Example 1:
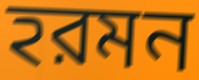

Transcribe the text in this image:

হরমন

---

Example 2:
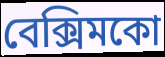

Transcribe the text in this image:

বেক্সিমকো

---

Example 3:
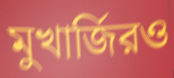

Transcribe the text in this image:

মুখার্জিরও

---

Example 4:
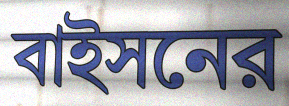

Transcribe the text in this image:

বাইসনের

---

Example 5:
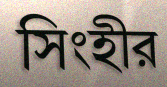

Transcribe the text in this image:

সিংহীর